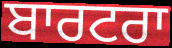
ਬਾਰਟਰਾ